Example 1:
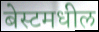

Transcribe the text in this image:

बेस्टमधील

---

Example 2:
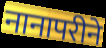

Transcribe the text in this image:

नानापरीने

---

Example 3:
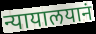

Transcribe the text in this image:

न्यायालयानं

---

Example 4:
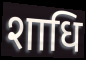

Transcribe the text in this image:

शाधि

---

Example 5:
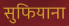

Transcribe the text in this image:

सुफियाना